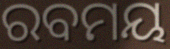
ରବମୟ